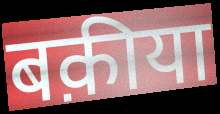
बक़ीया